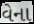
વેના